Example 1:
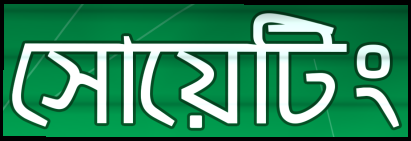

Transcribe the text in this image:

সোয়েটিং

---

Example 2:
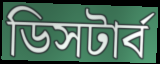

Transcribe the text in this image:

ডিসটার্ব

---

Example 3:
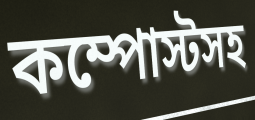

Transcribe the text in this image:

কম্পোস্টসহ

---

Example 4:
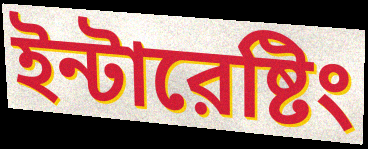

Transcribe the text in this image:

ইন্টারেষ্টিং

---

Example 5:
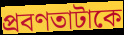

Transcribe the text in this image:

প্রবণতাটাকে